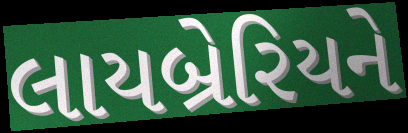
લાયબ્રેરિયને